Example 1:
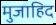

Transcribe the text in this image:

मुजाहिद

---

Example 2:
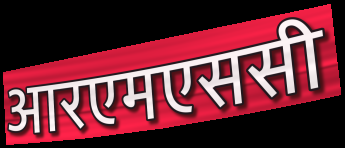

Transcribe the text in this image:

आरएमएससी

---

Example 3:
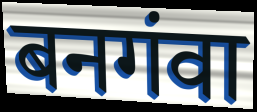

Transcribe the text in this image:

बनगंवा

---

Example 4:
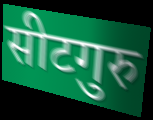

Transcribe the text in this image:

सीटगुरु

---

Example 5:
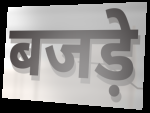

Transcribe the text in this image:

बजड़े